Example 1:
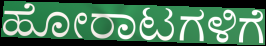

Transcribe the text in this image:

ಹೋರಾಟಗಳಿಗೆ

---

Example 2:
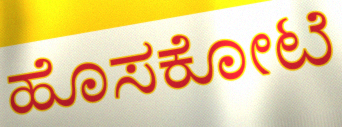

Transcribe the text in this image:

ಹೊಸಕೋಟೆ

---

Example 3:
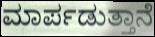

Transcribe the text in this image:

ಮಾರ್ಪಡುತ್ತಾನೆ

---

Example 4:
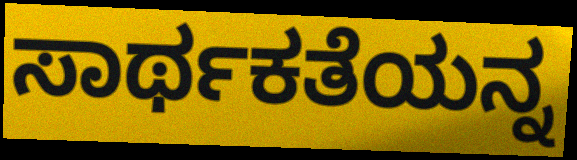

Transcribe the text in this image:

ಸಾರ್ಥಕತೆಯನ್ನ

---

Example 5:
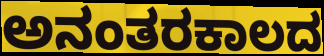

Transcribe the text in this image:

ಅನಂತರಕಾಲದ